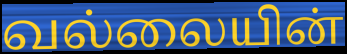
வல்லையின்